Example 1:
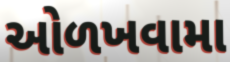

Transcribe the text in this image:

ઓળખવામા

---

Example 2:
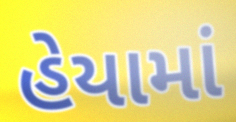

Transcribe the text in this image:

હેયામાં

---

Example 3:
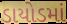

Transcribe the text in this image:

ડાયોડમાં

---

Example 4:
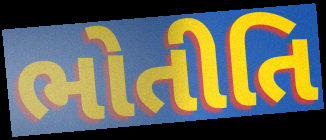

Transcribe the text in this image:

ભોતીતિ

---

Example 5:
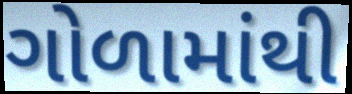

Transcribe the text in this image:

ગોળામાંથી